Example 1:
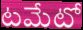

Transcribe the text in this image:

టమేటో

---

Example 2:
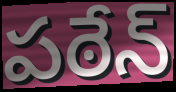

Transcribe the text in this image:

పఠేన్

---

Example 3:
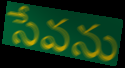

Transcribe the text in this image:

సేవను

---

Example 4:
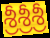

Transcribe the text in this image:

శ్రీశ్రీశ్రీ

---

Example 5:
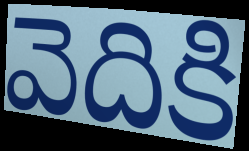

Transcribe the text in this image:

వెదికి